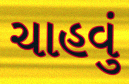
ચાહવું